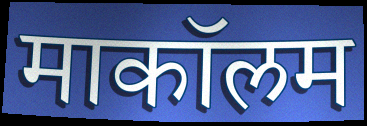
माकॉलम